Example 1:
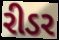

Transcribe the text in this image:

રીડર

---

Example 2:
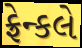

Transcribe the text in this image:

ફ્રેન્કલે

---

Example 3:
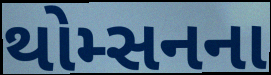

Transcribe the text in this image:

થોમ્સનના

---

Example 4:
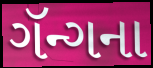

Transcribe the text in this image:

ગૅન્ગના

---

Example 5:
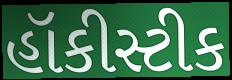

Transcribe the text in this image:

હૉકીસ્ટીક